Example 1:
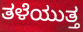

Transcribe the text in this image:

ತಳೆಯುತ್ತ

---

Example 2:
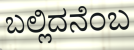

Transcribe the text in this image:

ಬಲ್ಲಿದನೆಂಬ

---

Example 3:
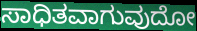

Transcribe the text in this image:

ಸಾಧಿತವಾಗುವುದೋ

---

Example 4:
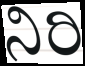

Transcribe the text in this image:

ನಿರಿ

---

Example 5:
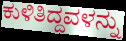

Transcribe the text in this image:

ಕುಳಿತಿದ್ದವಳನ್ನು